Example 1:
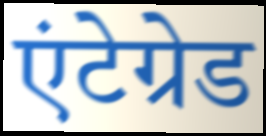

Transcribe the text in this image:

एंटेग्रेड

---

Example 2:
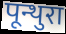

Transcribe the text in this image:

पून्थुरा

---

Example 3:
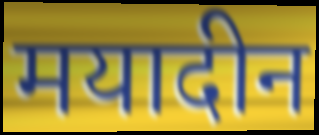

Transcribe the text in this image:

मयादीन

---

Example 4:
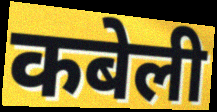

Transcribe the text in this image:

कबेली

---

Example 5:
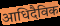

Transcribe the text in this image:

आधिदैविक